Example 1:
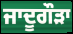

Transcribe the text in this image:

ਜਾਦੂਗੌੜਾ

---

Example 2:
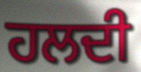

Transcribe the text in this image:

ਹਲਦੀ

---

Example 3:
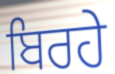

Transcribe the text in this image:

ਬਿਰਹੇ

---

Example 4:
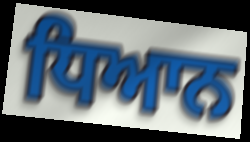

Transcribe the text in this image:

ਧਿਆਨ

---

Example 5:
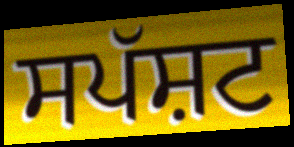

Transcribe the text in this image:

ਸਪੱਸ਼ਟ